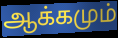
ஆக்கமும்